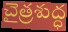
చైత్రశుద్ధ